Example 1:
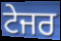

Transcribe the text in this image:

ਟੇਜਰ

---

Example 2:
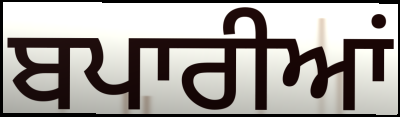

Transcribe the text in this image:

ਬਪਾਰੀਆਂ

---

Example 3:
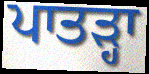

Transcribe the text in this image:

ਪਾਤੜ੍ਹਾ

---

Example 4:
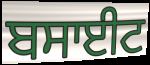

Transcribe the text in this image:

ਬਸਾਈਟ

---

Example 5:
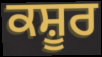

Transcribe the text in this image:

ਕਸ਼ੂਰ